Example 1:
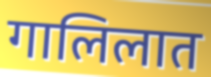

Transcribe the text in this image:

गालिलात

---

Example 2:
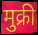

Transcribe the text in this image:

मुक्री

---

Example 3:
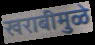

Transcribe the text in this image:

खराबीमुळे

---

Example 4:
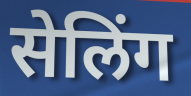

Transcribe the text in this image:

सेलिंग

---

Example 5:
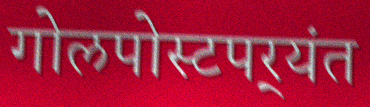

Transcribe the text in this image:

गोलपोस्टपर्यंत